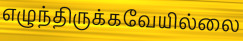
எழுந்திருக்கவேயில்லை